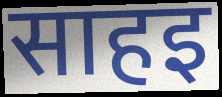
साहइ